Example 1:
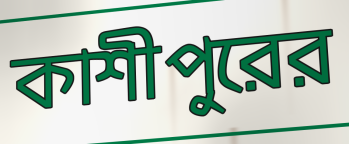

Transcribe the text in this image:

কাশীপুরের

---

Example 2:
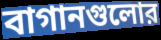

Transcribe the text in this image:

বাগানগুলোর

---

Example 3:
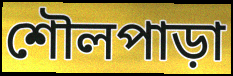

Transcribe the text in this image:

শৌলপাড়া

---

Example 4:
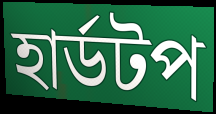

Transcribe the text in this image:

হার্ডটপ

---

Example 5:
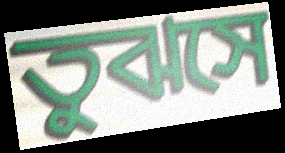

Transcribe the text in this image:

তুঝসে